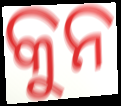
କୁନ